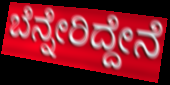
ಬೆನ್ನೇರಿದ್ದೇನೆ